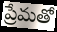
ప్రేమతో